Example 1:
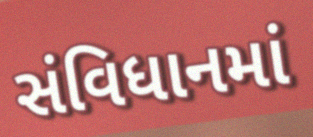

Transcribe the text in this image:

સંવિધાનમાં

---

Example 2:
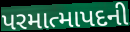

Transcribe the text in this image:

પરમાત્માપદની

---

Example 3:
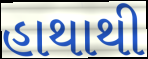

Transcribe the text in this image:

હાથાથી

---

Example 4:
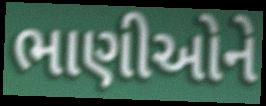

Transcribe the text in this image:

ભાણીઓને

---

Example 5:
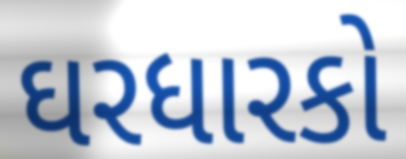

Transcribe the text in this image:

ઘરધારકો